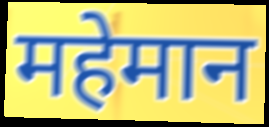
महेमान